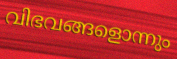
വിഭവങ്ങളൊന്നും